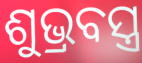
ଶୁଭ୍ରବସ୍ତ୍ର